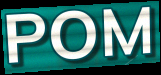
POM